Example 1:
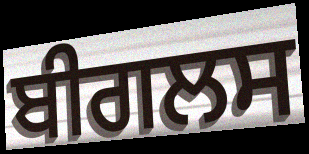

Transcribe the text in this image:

ਬੀਗਲਸ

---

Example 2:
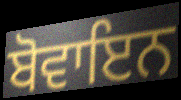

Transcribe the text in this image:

ਬੋਵਾਇਨ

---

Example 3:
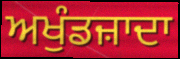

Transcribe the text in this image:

ਅਖੁੰਡਜ਼ਾਦਾ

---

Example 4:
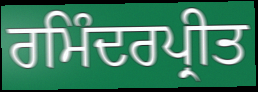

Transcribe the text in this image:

ਰਮਿੰਦਰਪ੍ਰੀਤ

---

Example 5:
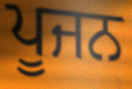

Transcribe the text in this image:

ਪੂਜਨ